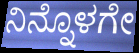
ನಿನ್ನೊಳಗೇ